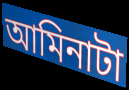
আমিনাটা